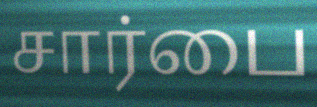
சார்பை